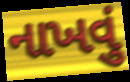
નાખવું